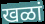
खळां